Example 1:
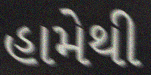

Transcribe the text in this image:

હામેથી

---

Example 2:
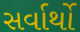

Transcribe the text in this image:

સર્વાર્થો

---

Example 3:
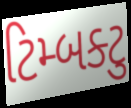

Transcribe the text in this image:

ટિમ્બક્ટુ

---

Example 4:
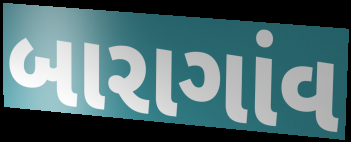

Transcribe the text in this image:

બારાગાંવ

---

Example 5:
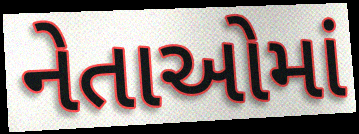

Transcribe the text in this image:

નેતાઓમાં